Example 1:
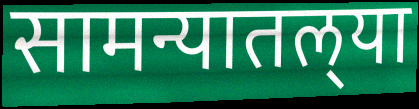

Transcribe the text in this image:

सामन्यातल्या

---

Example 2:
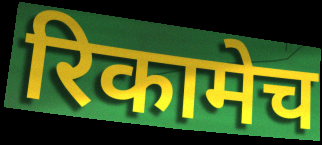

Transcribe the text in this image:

रिकामेच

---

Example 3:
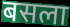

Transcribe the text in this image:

बसला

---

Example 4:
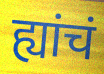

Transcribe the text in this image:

ह्यांचं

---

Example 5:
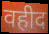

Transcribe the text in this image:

वहीद